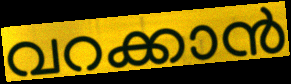
വറക്കാൻ